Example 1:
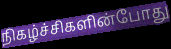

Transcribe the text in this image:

நிகழ்ச்சிகளின்போது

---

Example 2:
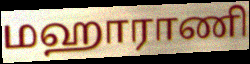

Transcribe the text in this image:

மஹாராணி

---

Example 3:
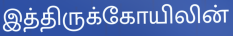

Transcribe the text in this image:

இத்திருக்கோயிலின்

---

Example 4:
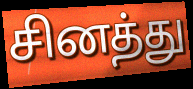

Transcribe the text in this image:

சினத்து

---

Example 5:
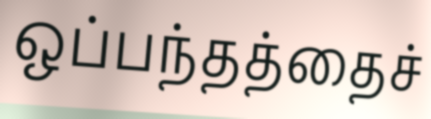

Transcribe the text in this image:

ஒப்பந்தத்தைச்